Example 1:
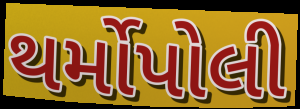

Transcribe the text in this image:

થર્મોપોલી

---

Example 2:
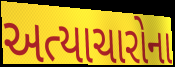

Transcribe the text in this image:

અત્યાચારોના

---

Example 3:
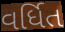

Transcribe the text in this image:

વર્ધિત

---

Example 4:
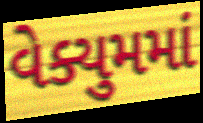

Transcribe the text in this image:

વેક્યુમમાં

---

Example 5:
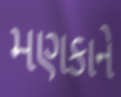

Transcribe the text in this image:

મણકાને